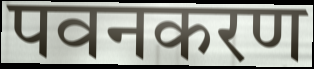
पवनकरण